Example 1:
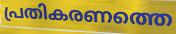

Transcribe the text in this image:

പ്രതികരണത്തെ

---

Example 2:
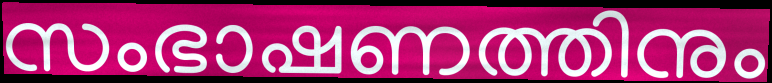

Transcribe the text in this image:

സംഭാഷണത്തിനും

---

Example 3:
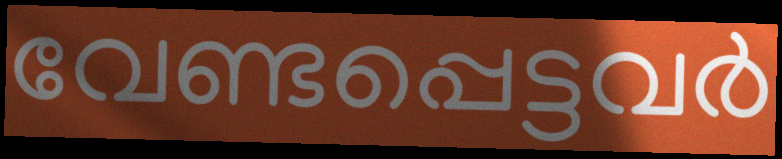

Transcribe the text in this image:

വേണ്ടപ്പെട്ടവർ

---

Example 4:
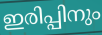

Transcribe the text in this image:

ഇരിപ്പിനും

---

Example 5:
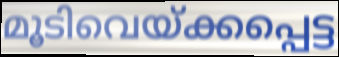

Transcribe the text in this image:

മൂടിവെയ്ക്കപ്പെട്ട